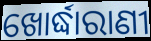
ଖୋର୍ଦ୍ଧାରାଣୀ